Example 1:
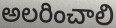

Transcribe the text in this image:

అలరించాలి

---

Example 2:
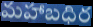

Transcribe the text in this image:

మహాబధిర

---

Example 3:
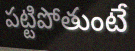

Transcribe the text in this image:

పట్టిపోతుంటే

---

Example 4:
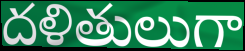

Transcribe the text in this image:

దళితులుగా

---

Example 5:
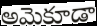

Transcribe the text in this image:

అమెకూడా